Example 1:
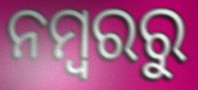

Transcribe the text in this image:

ନମ୍ବରରୁ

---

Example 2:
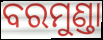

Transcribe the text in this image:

ବରମୁଣ୍ଡା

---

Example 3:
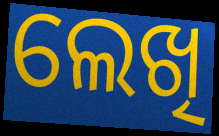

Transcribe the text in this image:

ଲେଖି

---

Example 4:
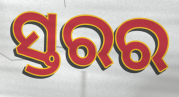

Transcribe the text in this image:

ସ୍ତରର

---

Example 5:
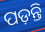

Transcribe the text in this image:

ପଡ଼ନ୍ତି